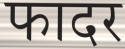
फादर